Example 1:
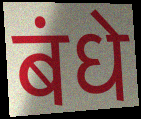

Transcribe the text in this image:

बंधे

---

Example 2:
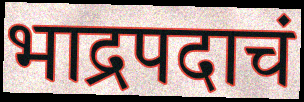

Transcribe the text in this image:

भाद्रपदाचं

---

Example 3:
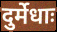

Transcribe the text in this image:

दुर्मेधाः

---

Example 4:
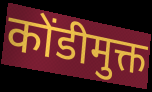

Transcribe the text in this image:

कोंडीमुक्त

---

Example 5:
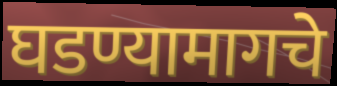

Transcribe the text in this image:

घडण्यामागचे